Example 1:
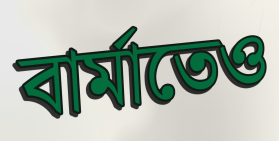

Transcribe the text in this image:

বার্মাতেও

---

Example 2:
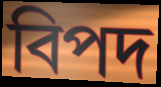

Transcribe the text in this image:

বিপদ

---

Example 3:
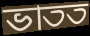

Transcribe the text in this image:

ভাতত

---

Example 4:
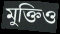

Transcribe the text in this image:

মুক্তিও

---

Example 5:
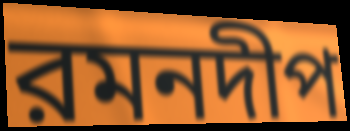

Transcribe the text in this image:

রমনদীপ